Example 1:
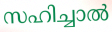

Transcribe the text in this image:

സഹിച്ചാൽ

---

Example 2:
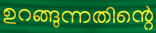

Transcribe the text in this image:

ഉറങ്ങുന്നതിന്റെ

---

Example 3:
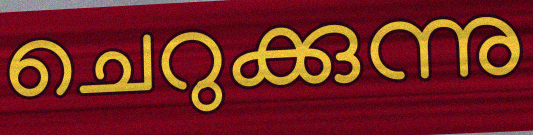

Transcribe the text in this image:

ചെറുക്കുന്നു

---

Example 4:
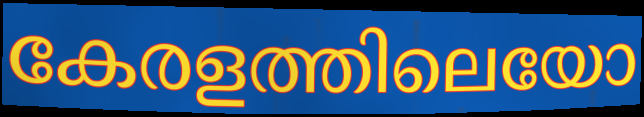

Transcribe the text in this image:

കേരളത്തിലെയോ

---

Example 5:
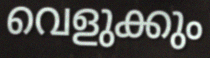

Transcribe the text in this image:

വെളുക്കും